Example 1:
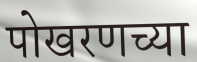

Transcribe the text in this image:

पोखरणच्या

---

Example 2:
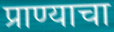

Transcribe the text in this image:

प्राण्याचा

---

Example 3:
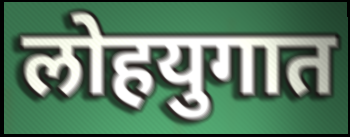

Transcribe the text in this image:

लोहयुगात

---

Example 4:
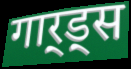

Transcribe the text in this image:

गार्ड्स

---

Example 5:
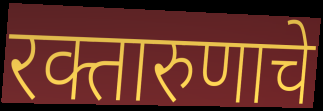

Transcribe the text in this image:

रक्तारुणाचे